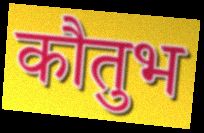
कौतुभ